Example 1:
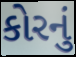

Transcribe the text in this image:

કોરનું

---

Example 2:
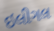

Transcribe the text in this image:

ઇલીગલ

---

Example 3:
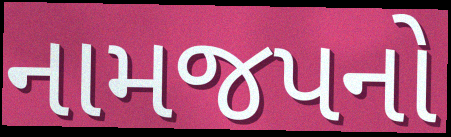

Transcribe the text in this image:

નામજપનો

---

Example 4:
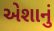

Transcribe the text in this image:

એશાનું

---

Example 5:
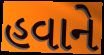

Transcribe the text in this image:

હવાને